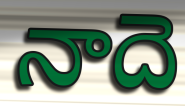
నాదె